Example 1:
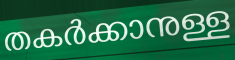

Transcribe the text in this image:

തകർക്കാനുള്ള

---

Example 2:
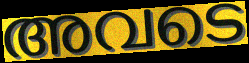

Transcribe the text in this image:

അവടെ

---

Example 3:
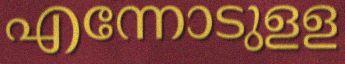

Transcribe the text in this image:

എന്നോടുളള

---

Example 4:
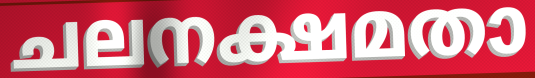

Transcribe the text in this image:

ചലനക്ഷമതാ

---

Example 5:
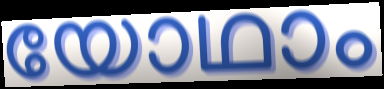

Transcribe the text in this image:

യോഥാം